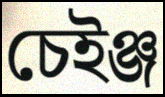
চেইঞ্জ